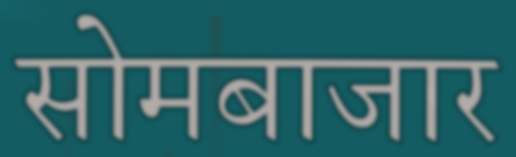
सोमबाजार